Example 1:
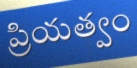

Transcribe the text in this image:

ప్రియత్వం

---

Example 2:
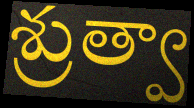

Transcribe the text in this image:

శ్రుత్వా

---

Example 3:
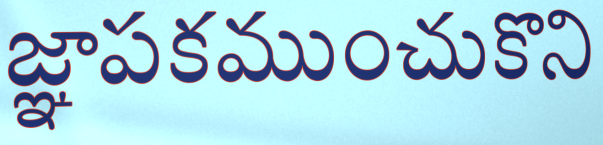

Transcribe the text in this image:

జ్ఞాపకముంచుకొని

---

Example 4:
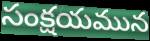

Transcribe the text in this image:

సంక్షయమున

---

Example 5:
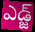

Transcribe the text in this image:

ఎడ్జ్